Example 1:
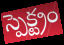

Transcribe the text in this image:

స్పెక్ట్రం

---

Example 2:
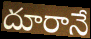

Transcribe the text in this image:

దూరానే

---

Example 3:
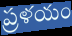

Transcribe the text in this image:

ప్రళయం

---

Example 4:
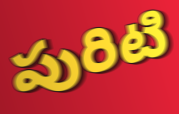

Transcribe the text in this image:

పురిటి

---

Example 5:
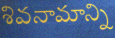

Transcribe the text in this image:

శివనామాన్ని